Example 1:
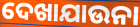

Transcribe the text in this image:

ଦେଖାଯାଉନା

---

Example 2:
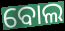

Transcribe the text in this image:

ବୋଲ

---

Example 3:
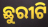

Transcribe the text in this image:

ଛୁରୀଟି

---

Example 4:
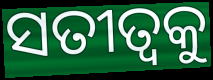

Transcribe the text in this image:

ସତୀତ୍ୱକୁ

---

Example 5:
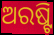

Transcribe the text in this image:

ଅରଷ୍ଟି